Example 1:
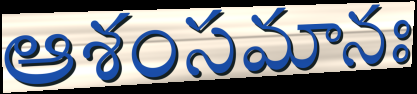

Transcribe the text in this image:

ఆశంసమానః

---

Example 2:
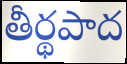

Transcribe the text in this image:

తీర్థపాద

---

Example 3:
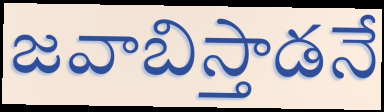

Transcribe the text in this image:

జవాబిస్తాడనే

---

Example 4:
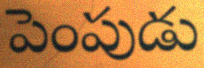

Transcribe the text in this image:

పెంపుడు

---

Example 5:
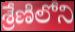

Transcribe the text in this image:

శ్రేణిలోని